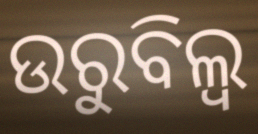
ଉରୁବିଲ୍ୱ